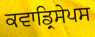
ਕਵਾਡ੍ਰਿਸੇਪਸ